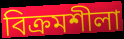
বিক্ৰমশীলা